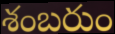
శంబరుం